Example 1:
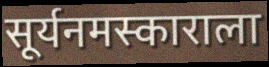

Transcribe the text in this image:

सूर्यनमस्काराला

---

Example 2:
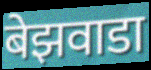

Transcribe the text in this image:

बेझवाडा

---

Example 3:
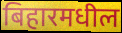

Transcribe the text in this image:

बिहारमधील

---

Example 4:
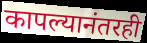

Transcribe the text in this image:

कापल्यानंतरही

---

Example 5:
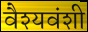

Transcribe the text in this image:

वैश्यवंशी